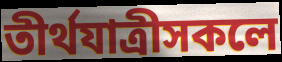
তীৰ্থযাত্ৰীসকলে